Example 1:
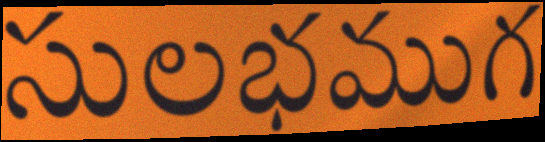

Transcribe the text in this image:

సులభముగ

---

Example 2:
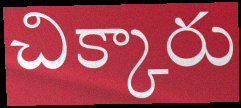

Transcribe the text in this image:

చిక్కారు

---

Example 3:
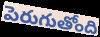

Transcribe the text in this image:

పెరుగుతోంది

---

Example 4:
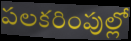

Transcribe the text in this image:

పలకరింపుల్లో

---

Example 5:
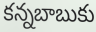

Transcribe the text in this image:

కన్నబాబుకు